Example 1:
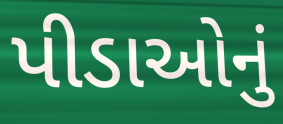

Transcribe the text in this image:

પીડાઓનું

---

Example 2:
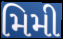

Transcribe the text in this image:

મિમી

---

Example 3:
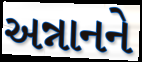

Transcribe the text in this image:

અન્નાનને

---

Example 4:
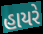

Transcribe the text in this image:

હાયરે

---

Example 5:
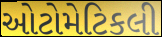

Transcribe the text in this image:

ઓટોમેટિકલી